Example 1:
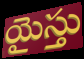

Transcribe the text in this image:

యైస్తు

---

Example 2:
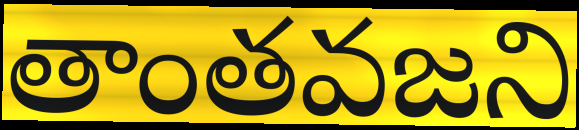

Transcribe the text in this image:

తాంతవజని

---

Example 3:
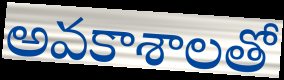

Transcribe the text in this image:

అవకాశాలతో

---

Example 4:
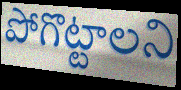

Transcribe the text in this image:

పోగొట్టాలని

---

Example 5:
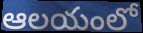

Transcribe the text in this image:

ఆలయంలో